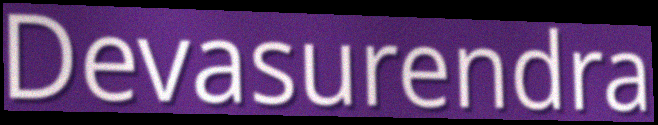
Devasurendra